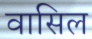
वासिल